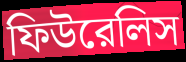
ফিউরেলিস